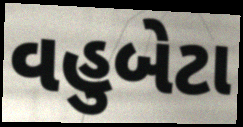
વહુબેટા